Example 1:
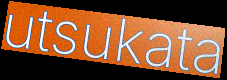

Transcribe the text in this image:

utsukata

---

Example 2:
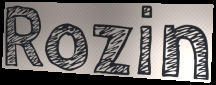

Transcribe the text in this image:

Rozin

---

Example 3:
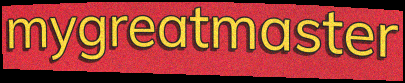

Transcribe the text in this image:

mygreatmaster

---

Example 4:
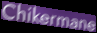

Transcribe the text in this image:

Chikermane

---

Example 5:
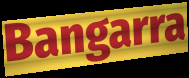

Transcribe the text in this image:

Bangarra